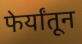
फेर्यांतून